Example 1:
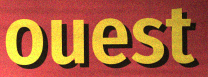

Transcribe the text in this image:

ouest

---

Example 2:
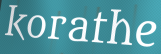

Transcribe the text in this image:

korathe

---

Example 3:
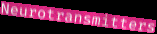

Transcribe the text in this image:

Neurotransmitters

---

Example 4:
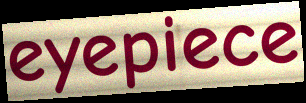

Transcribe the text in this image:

eyepiece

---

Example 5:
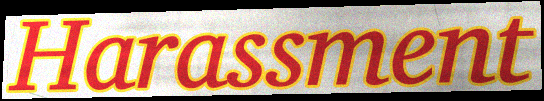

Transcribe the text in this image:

Harassment